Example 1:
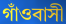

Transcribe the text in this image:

গাঁওবাসী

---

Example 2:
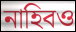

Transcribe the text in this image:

নাহিবও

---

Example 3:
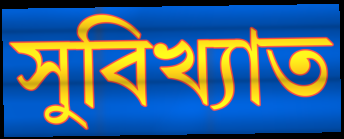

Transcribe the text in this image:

সুবিখ্যাত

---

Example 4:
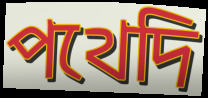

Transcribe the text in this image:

পথেদি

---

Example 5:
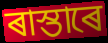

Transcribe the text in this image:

ৰাস্তাৰে